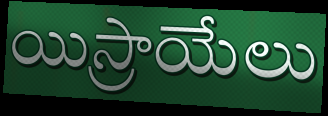
యిస్రాయేలు